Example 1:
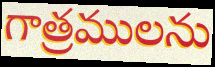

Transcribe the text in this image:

గాత్రములను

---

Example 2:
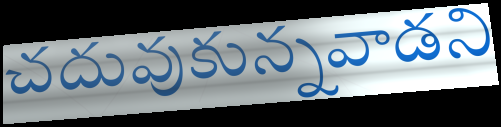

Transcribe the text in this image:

చదువుకున్నవాడని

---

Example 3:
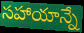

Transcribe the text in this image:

సహాయాన్నే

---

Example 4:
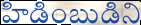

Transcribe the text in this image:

హిడింబుడిని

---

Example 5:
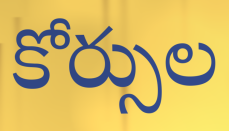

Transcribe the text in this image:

కోర్సుల